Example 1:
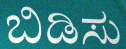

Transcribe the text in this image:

ಬಿಡಿಸು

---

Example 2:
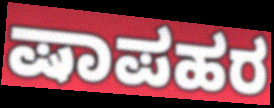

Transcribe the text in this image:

ಷಾಪಹರ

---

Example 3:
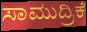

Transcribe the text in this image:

ಸಾಮುದ್ರಿಕೆ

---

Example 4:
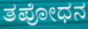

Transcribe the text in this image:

ತಪೋಧನ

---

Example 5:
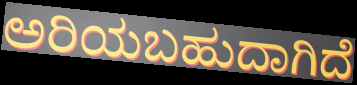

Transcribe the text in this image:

ಅರಿಯಬಹುದಾಗಿದೆ